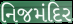
નિજમંદિર